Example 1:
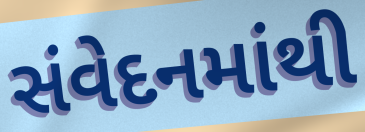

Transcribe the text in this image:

સંવેદનમાંથી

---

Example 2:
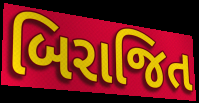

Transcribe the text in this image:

બિરાજિત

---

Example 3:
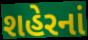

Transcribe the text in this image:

શહેરનાં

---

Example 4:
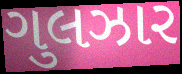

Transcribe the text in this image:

ગુલઝાર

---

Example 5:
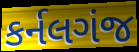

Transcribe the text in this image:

કર્નલગંજ